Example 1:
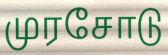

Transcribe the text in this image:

முரசோடு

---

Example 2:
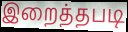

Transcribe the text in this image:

இறைத்தபடி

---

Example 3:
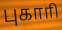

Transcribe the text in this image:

புகாரி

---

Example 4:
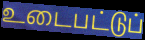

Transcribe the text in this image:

உடைபட்டுப்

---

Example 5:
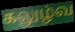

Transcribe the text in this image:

கலுழ்வ